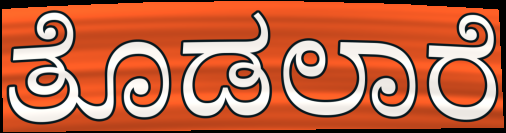
ತೊಡಲಾರೆ